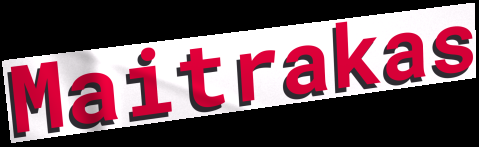
Maitrakas